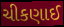
ચીકણાઈ